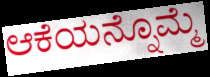
ಆಕೆಯನ್ನೊಮ್ಮೆ